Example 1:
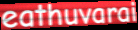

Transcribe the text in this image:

eathuvarai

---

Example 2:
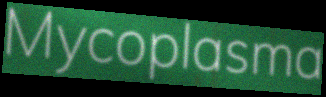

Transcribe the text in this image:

Mycoplasma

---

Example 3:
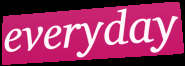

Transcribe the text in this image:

everyday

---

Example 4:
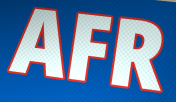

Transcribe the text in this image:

AFR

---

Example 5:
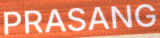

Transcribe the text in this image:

PRASANG